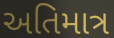
અતિમાત્ર